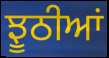
ਝੂਠੀਆਂ